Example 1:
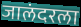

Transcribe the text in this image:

जालंदरला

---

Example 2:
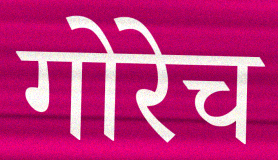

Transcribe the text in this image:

गोरेच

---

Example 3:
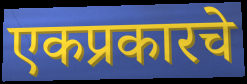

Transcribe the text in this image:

एकप्रकारचे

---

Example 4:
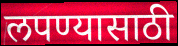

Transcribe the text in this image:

लपण्यासाठी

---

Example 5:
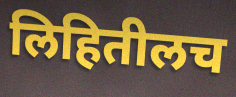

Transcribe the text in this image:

लिहितीलच